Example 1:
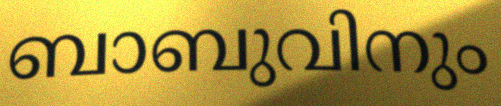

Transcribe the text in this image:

ബാബുവിനും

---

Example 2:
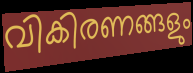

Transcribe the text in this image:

വികിരണങ്ങളും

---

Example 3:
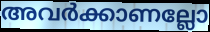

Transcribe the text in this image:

അവർക്കാണല്ലോ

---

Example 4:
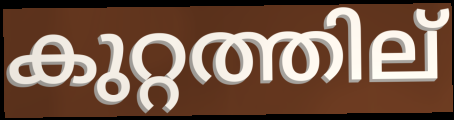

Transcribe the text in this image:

കുറ്റത്തില്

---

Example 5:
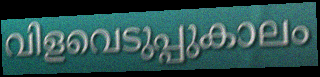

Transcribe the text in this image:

വിളവെടുപ്പുകാലം